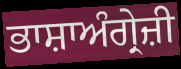
ਭਾਸ਼ਾਅੰਗ੍ਰੇਜ਼ੀ